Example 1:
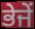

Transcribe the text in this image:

ਭੇਜੇਂ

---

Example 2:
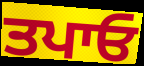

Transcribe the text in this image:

ਤਪਾਓ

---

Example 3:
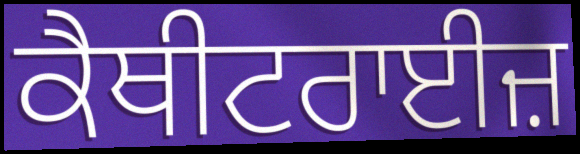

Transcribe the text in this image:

ਕੈਥੀਟਰਾਈਜ਼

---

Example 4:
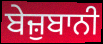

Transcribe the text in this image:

ਬੇਜ਼ੁਬਾਨੀ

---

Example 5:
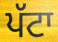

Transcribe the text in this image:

ਪੱਟਾ